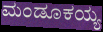
ಮಂಡೂಕಯ್ಯ